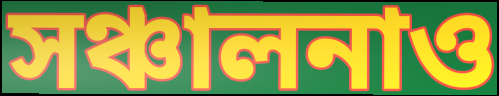
সঞ্চালনাও